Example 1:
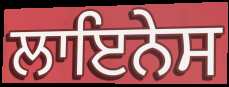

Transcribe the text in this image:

ਲਾਇਨੇਸ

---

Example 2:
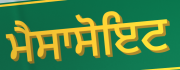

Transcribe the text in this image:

ਮੈਸਾਸੋਇਟ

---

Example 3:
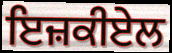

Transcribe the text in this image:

ਇਜ਼ਕੀਏਲ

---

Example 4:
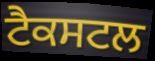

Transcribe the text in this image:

ਟੈਕਸਟਲ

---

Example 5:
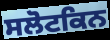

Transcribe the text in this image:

ਸਲੋਟਕਿਨ